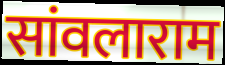
सांवलाराम